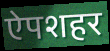
ऐपशहर